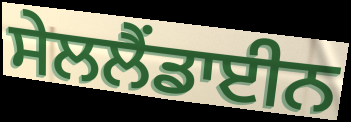
ਸੇਲਲੈਂਡਾਈਨ